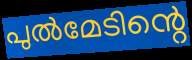
പുൽമേടിന്റെ